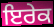
ਇਰੇਕ